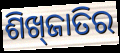
ଶିଖ୍‌ଜାତିର